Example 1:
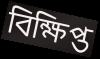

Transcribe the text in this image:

বিক্ষিপ্ত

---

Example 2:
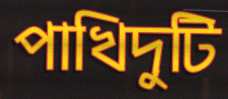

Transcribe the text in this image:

পাখিদুটি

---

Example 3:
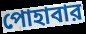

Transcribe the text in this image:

পোহাবার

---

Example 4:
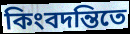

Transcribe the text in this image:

কিংবদন্তিতে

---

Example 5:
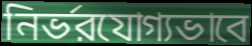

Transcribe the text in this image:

নির্ভরযোগ্যভাবে